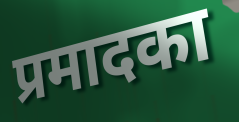
प्रमादका